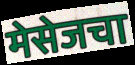
मेसेजचा